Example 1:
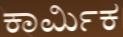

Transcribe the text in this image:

ಕಾರ್ಮಿಕ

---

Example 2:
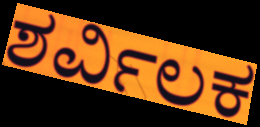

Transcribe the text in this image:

ಶರ್ವಿಲಕ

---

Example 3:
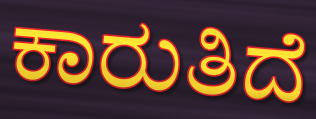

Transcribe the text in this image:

ಕಾರುತಿದೆ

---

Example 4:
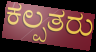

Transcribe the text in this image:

ಕಲ್ಪತರು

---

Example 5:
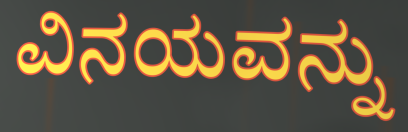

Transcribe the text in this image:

ವಿನಯವನ್ನು